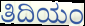
ತಿದಿಯಂ